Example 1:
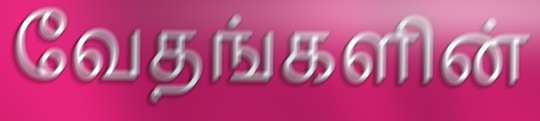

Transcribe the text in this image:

வேதங்களின்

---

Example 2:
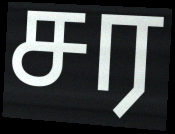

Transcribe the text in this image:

சர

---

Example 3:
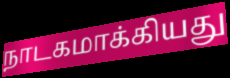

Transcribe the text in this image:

நாடகமாக்கியது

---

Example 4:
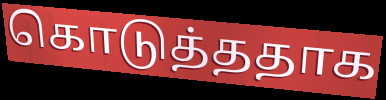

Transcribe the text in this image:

கொடுத்ததாக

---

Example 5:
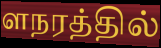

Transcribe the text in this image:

ளநரத்தில்